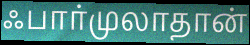
ஃபார்முலாதான்